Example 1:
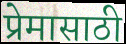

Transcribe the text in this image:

प्रेमासाठी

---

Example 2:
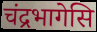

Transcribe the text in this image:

चंद्रभागेसि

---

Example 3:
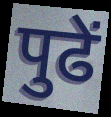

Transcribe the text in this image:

पुढें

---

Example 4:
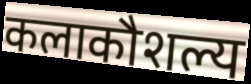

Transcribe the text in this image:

कलाकौशल्य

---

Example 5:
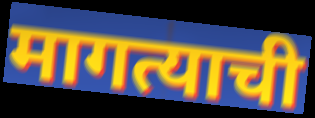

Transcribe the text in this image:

मागत्याची